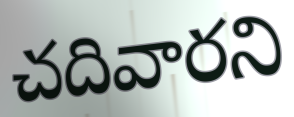
చదివారని